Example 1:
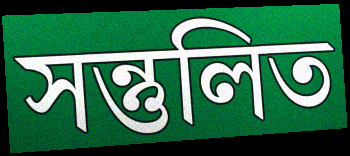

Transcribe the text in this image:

সন্তুলিত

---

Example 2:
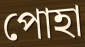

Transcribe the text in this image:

পোহা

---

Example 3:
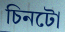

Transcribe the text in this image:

চিনটো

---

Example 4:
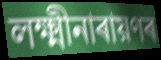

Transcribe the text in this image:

লক্ষ্মীনাৰায়ণৰ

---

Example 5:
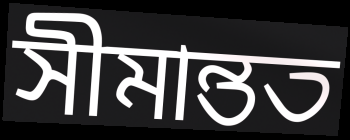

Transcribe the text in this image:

সীমান্তত